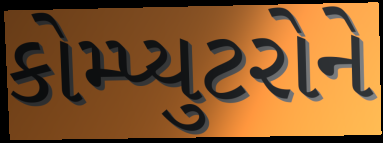
કોમ્પ્યુટરોને